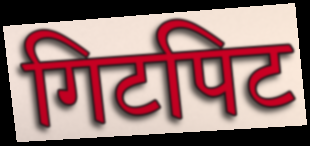
गिटपिट